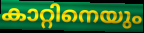
കാറ്റിനെയും